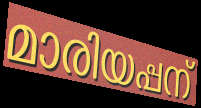
മാരിയപ്പന്